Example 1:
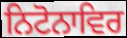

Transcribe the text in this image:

ਨਿਟੋਨਾਵਿਰ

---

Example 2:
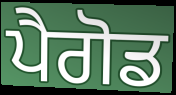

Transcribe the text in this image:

ਪੈਗੋਡ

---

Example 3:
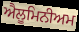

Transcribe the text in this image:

ਐਲੂਮਿਨੀਅਮ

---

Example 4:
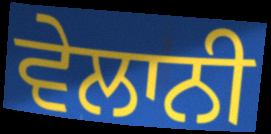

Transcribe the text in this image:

ਵੇਲਾਨੀ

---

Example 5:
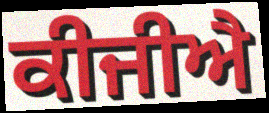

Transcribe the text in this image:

ਕੀਜੀਐ